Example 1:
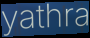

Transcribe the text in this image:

yathra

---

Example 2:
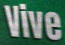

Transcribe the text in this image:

Vive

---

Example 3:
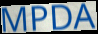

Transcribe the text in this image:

MPDA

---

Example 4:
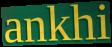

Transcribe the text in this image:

ankhi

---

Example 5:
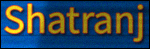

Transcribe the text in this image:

Shatranj